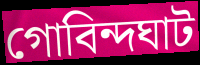
গোবিন্দঘাট